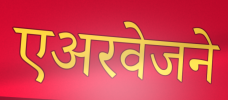
एअरवेजने